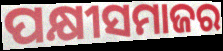
ପକ୍ଷୀସମାଜର